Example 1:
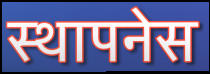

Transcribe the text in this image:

स्थापनेस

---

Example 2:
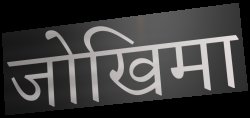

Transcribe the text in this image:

जोखिमा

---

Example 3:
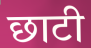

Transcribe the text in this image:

छाटी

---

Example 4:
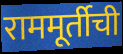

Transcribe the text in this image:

राममूर्तीची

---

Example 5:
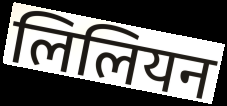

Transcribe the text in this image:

लिलियन